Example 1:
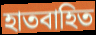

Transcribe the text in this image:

হাতবাহিত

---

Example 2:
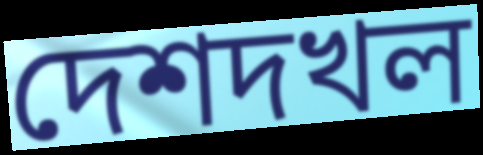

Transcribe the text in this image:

দেশদখল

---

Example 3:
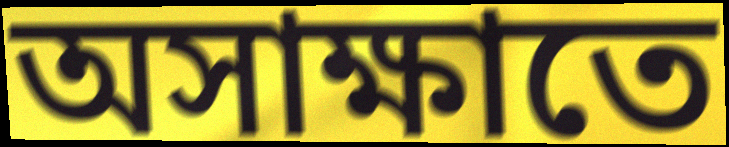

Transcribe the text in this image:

অসাক্ষাতে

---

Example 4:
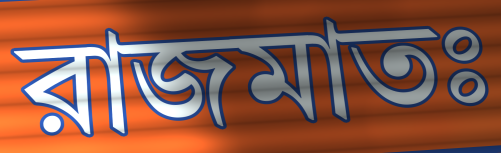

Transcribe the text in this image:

রাজমাতঃ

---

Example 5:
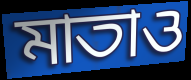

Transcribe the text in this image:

মাতাও